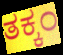
ತಕ್ಕಂ